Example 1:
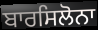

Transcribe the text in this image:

ਬਾਰਸਿਲੋਨਾ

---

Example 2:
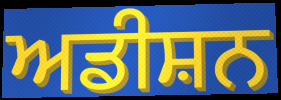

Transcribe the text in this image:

ਅਡੀਸ਼ਨ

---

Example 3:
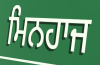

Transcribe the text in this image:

ਮਿਨਹਾਜ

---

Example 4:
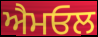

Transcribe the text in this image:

ਐਮਓਲ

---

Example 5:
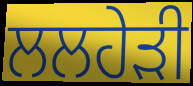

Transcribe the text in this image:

ਲਲਹੇੜੀ